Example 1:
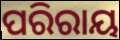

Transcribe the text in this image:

ପରିରାୟ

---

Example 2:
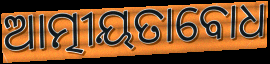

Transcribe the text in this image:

ଆତ୍ମୀୟତାବୋଧ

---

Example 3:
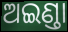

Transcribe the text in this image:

ଅଇଣ୍ଡା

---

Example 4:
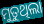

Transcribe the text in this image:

ମୁତୁଥିଲା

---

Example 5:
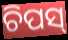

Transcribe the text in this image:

ଚିପସ୍